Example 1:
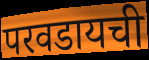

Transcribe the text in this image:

परवडायची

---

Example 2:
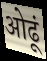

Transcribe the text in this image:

ओढूं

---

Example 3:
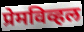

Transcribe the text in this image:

प्रेमविव्हल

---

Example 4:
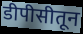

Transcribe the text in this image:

डीपीसीतून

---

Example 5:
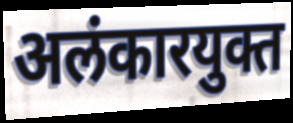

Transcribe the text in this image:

अलंकारयुक्त